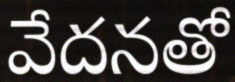
వేదనతో